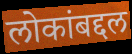
लोकांबद्दल